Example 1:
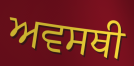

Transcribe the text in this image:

ਅਵਸਥੀ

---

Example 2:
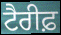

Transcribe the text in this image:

ਟੈਰੀਫ਼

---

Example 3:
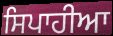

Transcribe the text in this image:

ਸਿਪਾਹੀਆ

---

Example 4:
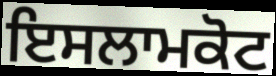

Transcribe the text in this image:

ਇਸਲਾਮਕੋਟ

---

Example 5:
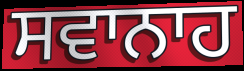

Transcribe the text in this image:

ਸਵਾਨਾਹ